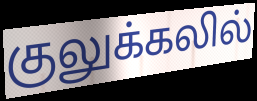
குலுக்கலில்